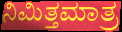
ನಿಮಿತ್ತಮಾತ್ರ